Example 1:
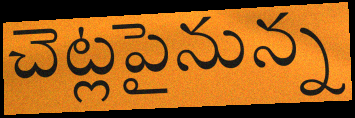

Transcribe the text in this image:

చెట్లపైనున్న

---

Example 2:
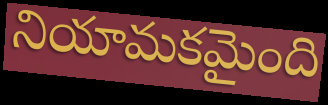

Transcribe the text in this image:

నియామకమైంది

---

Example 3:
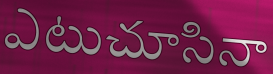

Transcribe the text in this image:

ఎటుచూసినా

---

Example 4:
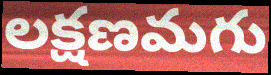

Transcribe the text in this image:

లక్షణమగు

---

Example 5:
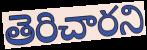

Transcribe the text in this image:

తెరిచారని